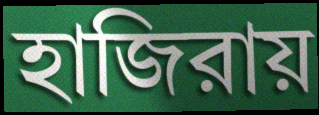
হাজিরায়